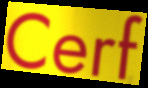
Cerf